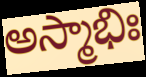
అస్మాభిః